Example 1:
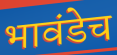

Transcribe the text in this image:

भावंडेच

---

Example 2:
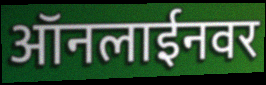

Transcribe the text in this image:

ऑनलाईनवर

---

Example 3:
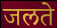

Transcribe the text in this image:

जलते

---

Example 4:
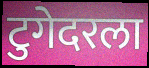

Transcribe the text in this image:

टुगेदरला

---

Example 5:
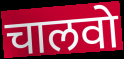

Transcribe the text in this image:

चालवो